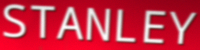
STANLEY